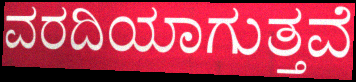
ವರದಿಯಾಗುತ್ತವೆ